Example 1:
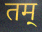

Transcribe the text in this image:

तम्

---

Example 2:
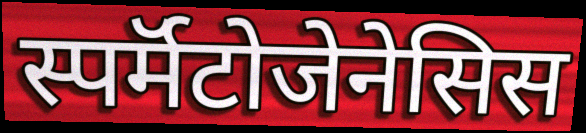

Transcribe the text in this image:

स्पर्मॅटोजेनेसिस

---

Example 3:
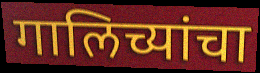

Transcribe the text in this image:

गालिच्यांचा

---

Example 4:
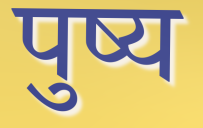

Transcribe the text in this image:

पुष्य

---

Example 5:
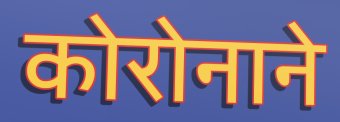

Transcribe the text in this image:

कोरोनाने